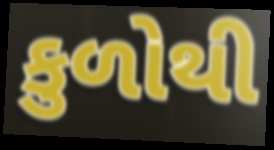
કુળોથી